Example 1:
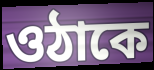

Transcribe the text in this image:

ওঠাকে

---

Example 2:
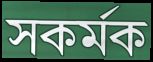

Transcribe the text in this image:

সকর্মক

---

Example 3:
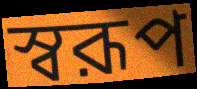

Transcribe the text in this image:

স্বরূপ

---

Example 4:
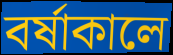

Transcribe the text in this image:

বর্ষাকালে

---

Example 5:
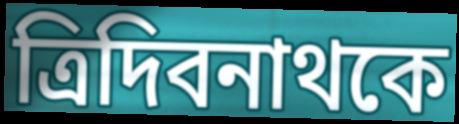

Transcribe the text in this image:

ত্রিদিবনাথকে